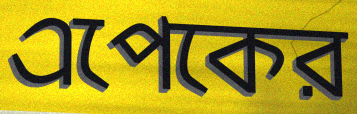
এপেকের